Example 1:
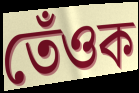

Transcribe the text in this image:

তেঁওক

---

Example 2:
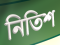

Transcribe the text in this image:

নিতিশ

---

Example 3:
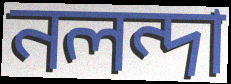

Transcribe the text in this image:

নলন্দা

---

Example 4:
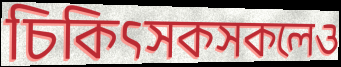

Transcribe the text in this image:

চিকিৎসকসকলেও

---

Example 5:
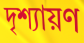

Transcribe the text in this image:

দৃশ্যায়ণ